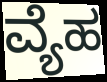
ವ್ಯೆಹ